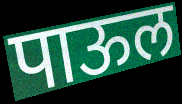
पाऊल